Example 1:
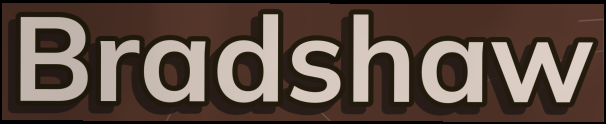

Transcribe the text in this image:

Bradshaw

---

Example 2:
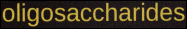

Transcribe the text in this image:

oligosaccharides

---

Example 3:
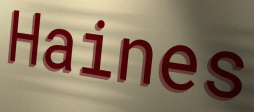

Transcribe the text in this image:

Haines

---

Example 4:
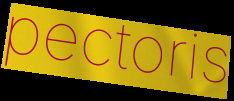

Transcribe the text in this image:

pectoris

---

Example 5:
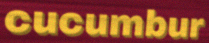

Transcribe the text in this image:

cucumbur